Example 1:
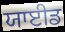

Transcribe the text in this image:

ਯਾਈਡ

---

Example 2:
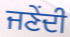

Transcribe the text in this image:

ਜਣੇਂਦੀ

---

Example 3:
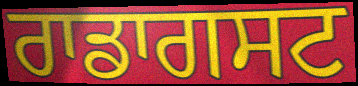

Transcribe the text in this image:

ਰਾਡਾਗਸਟ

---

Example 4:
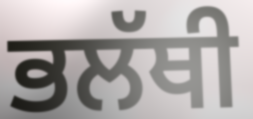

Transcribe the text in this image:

ਭਲੱਥੀ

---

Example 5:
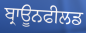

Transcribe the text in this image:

ਬ੍ਰਾਊਨਫੀਲਡ